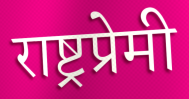
राष्ट्रप्रेमी